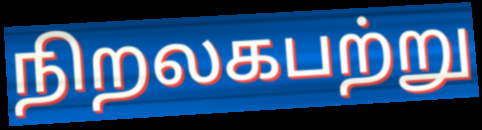
நிறலகபற்று